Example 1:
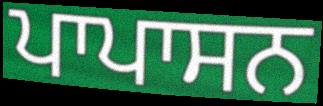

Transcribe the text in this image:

ਪਾਪਾਸਨ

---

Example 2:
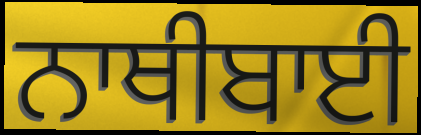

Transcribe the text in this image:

ਨਾਥੀਬਾਈ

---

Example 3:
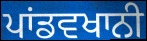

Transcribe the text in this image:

ਪਾਂਡਵਖਾਨੀ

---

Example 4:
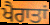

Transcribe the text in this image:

ਖੈਰਾਤਾਂ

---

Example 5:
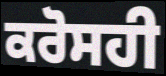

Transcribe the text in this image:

ਕਰੋਸਹੀ